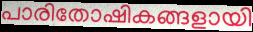
പാരിതോഷികങ്ങളായി